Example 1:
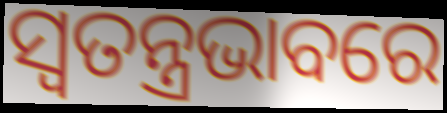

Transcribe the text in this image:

ସ୍ଵତନ୍ତ୍ରଭାବରେ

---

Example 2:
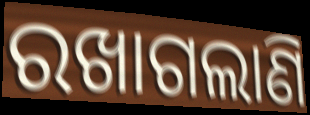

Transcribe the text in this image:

ରଖାଗଲାଣି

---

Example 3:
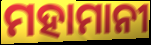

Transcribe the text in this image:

ମହାମାନୀ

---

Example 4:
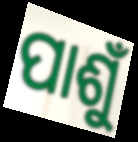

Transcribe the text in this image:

ପାଶୁଁ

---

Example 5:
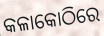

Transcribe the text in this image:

କଳାକୋଠିରେ